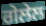
ਗੇਲੇਲ